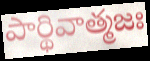
పార్థివాత్మజః